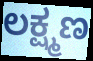
ಲಕ್ಷ್ಮಣ